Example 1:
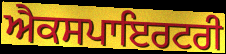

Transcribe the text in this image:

ਐਕਸਪਾਇਰਟਰੀ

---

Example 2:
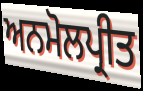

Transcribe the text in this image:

ਅਨਮੋਲਪ੍ਰੀਤ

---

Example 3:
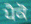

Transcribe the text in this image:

ਪੈਕੋ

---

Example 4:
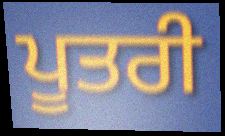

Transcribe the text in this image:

ਪੂਤਰੀ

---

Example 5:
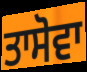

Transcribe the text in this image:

ਤਾਸੋਵਾ